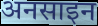
अनसाइन